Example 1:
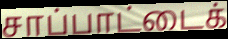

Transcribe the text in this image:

சாப்பாட்டைக்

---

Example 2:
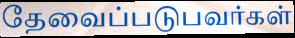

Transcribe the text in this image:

தேவைப்படுபவர்கள்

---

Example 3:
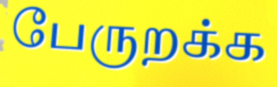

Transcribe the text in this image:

பேருறக்க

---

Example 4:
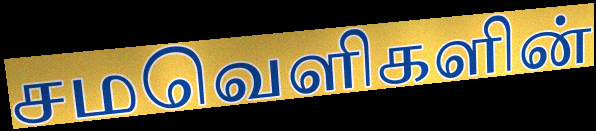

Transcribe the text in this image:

சமவெளிகளின்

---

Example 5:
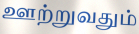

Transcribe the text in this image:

ஊற்றுவதும்